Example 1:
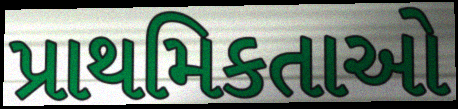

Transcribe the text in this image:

પ્રાથમિકતાઓ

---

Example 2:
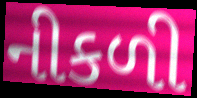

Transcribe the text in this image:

નીકળી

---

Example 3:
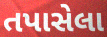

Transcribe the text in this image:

તપાસેલા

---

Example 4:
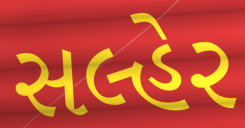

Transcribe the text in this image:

સલ્હેર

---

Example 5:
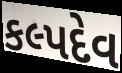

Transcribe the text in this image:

કલ્પદેવ